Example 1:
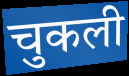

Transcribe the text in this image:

चुकली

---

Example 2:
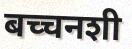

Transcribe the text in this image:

बच्चनशी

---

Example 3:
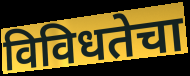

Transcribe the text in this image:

विविधतेचा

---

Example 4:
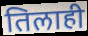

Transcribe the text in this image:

तिलाही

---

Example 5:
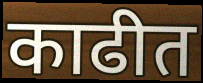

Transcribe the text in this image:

काढीत